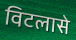
विटलासे